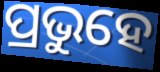
ପ୍ରଭୁହେ